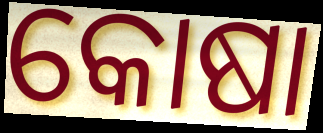
କୋଷା